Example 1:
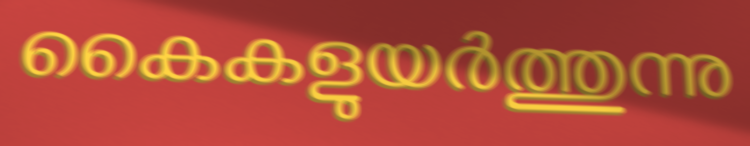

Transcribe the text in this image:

കൈകളുയർത്തുന്നു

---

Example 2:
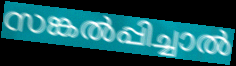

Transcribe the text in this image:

സങ്കൽപ്പിച്ചാൽ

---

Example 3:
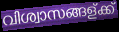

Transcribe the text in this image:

വിശ്വാസങ്ങള്ക്ക്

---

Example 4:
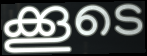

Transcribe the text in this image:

ക്കൂടെ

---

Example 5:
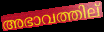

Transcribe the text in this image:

അഭാവത്തില്